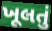
ખૂલતું